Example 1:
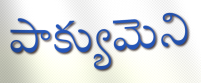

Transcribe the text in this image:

పాక్యుమెని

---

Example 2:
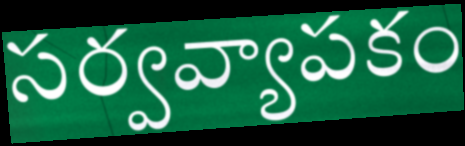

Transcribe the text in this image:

సర్వవ్యాపకం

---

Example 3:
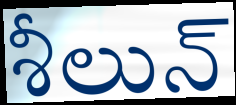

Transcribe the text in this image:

శీలున్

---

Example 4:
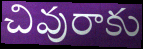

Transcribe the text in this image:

చివురాకు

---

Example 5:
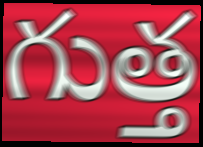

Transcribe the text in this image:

గుత్త